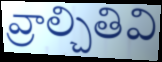
వ్రాల్చితివి